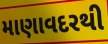
માણાવદરથી